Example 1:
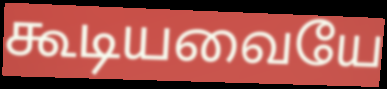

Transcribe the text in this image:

கூடியவையே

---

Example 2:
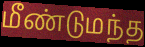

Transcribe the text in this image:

மீண்டுமந்த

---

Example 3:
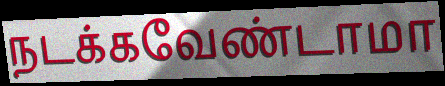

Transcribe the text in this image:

நடக்கவேண்டாமா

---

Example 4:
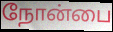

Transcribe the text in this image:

நோன்பை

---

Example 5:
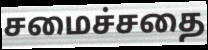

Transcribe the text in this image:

சமைச்சதை